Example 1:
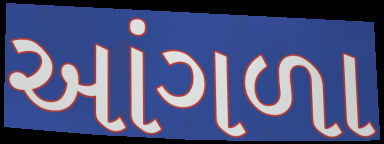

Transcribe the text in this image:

આંગળા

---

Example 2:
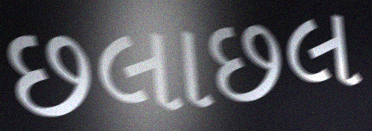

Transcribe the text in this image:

છલાછલ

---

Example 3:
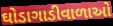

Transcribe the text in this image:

ઘોડાગાડીવાળાઓ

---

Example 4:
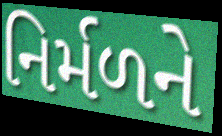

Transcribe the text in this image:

નિર્મળને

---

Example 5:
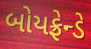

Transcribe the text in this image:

બોયફ્રેન્ડે